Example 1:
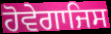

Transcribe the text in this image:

ਹੋਵੇਗਾਜਿਸ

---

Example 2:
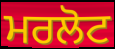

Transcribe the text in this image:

ਮਰਲੋਟ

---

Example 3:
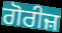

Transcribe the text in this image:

ਗੋਰੀਜ਼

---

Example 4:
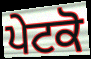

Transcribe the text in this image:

ਪੇਟਕੋ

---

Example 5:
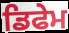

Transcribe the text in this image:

ਡਿਫੇਮ